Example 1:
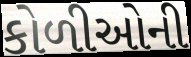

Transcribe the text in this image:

કોળીઓની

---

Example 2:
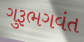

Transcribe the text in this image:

ગુરૂભગવંત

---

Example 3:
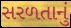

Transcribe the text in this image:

સરળતાનું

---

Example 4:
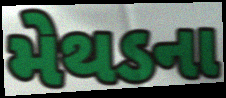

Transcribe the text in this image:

મેથડના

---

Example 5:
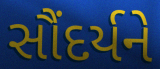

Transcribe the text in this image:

સૌંદર્યને